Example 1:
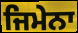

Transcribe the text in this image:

ਜਿਮੇਨਾ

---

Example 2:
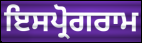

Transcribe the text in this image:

ਇਸਪ੍ਰੋਗਰਾਮ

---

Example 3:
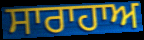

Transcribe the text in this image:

ਸਾਰਾਹਾਅ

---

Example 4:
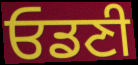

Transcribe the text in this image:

ਓਡਣੀ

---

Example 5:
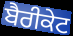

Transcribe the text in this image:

ਬੈਰੀਕੇਟ